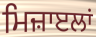
ਮਿਜ਼ਾੲਲਾਂ